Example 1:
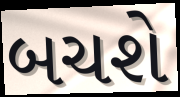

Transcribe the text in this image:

બચશે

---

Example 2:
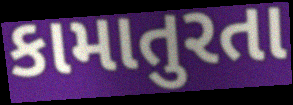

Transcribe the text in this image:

કામાતુરતા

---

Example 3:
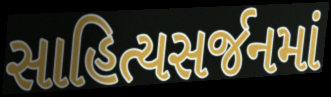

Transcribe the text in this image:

સાહિત્યસર્જનમાં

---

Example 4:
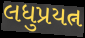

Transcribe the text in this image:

લધુપ્રયત્ન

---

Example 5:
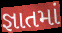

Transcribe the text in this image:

જ્ઞાતમાં